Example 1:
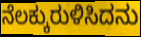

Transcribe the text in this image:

ನೆಲಕ್ಕುರುಳಿಸಿದನು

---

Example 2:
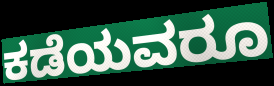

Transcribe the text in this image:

ಕಡೆಯವರೂ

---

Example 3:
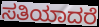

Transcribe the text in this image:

ಸತಿಯಾದರೆ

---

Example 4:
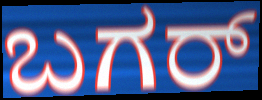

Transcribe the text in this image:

ಬಗರ್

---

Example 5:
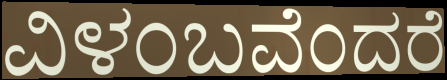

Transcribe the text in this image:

ವಿಳಂಬವೆಂದರೆ